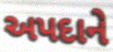
અપદાને